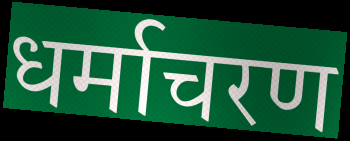
धर्माचरण